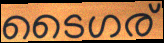
ടൈഗര്